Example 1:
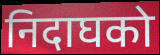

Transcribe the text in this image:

निदाघको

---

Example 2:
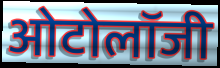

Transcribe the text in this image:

ओटोलॉजी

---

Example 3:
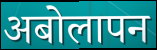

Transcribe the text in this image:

अबोलापन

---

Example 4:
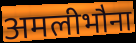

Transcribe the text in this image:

अमलीभौना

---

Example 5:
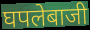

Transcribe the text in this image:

घपलेबाजी